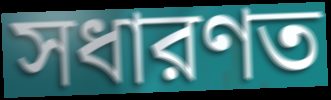
সধারণত